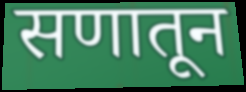
सणातून